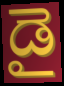
డై